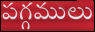
పగ్గములు